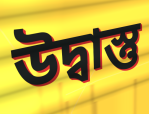
উদ্বাস্তু